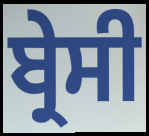
ਬ੍ਰੇਸੀ